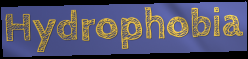
Hydrophobia